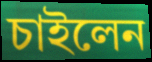
চাইলেন